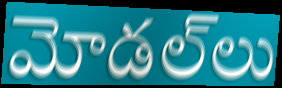
మోడల్‌లు